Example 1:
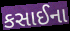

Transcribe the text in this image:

કસાઈના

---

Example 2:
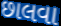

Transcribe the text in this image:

છાલવા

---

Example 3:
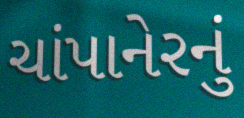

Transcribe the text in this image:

ચાંપાનેરનું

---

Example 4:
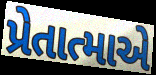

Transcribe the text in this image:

પ્રેતાત્માએ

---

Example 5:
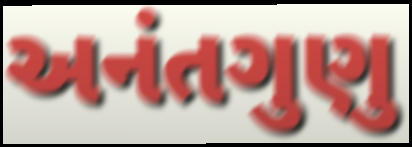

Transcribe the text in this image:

અનંતગુણુ